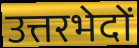
उत्तरभेदों